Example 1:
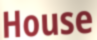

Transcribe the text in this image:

House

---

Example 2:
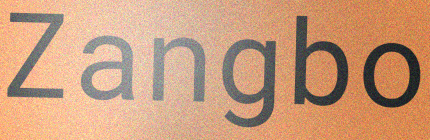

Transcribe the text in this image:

Zangbo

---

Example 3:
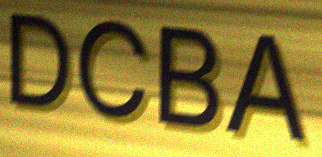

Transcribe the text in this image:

DCBA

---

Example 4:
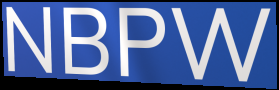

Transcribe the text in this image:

NBPW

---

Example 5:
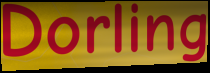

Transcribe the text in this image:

Dorling